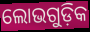
ଲୋଭଗୁଡ଼ିକ